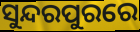
ସୁନ୍ଦରପୁରରେ